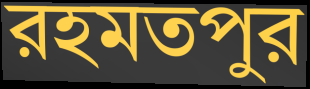
রহমতপুর